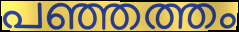
പഞ്ഞത്തം